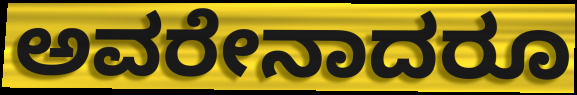
ಅವರೇನಾದರೂ